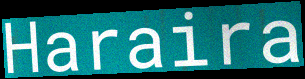
Haraira